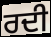
ਰਦੀ